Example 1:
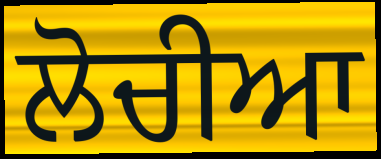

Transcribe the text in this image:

ਲੋਚੀਆ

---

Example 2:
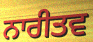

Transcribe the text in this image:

ਨਾਰੀਤਵ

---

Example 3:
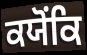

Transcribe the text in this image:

ਕਯੋਂਕਿ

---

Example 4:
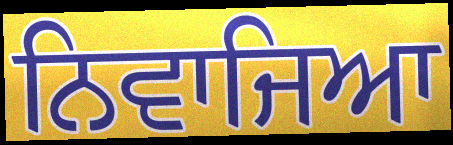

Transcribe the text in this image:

ਨਿਵਾਜਿਆ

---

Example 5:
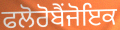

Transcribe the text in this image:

ਫਲੋਰੋਬੈਂਜੋਇਕ